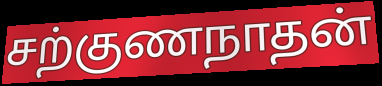
சற்குணநாதன்